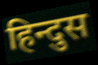
हिन्दुस